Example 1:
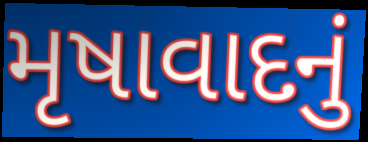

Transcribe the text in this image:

મૃષાવાદનું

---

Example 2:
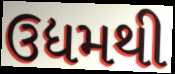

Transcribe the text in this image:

ઉદ્યમથી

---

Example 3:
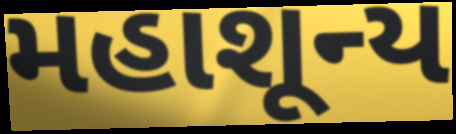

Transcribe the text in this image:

મહાશૂન્ય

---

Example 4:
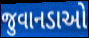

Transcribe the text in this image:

જુવાનડાઓ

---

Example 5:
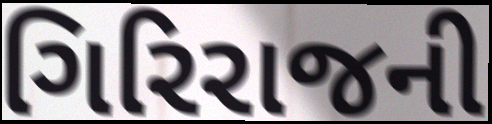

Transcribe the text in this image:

ગિરિરાજની